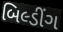
બિલ્ડીંગ